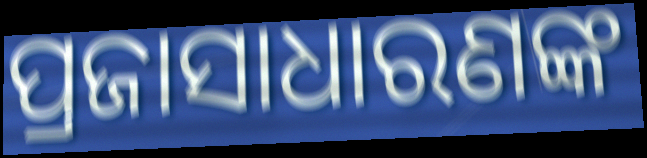
ପ୍ରଜାସାଧାରଣଙ୍କ